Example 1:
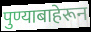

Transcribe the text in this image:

पुण्याबाहेरून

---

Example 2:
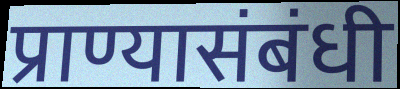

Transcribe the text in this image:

प्राण्यासंबंधी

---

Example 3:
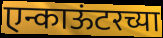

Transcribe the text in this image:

एन्काऊंटरच्या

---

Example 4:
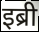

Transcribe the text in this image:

इब्री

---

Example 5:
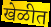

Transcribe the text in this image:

खेळीत